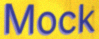
Mock